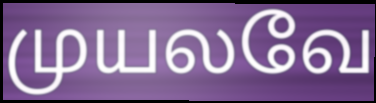
முயலவே